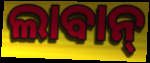
ଲାବାନ୍